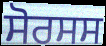
ਸੋਰਸਸ